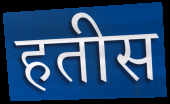
हतीस